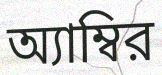
অ্যাম্বির